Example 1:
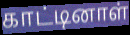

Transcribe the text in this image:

காட்டினாள்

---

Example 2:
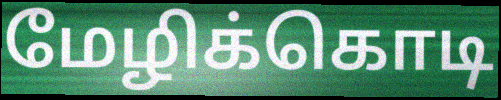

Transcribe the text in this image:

மேழிக்கொடி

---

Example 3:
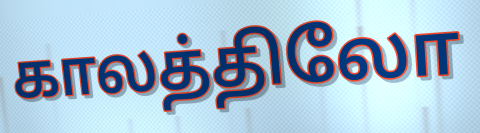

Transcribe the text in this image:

காலத்திலோ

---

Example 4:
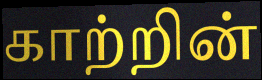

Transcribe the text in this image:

காற்றின்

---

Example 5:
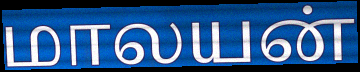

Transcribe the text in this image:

மாலயன்